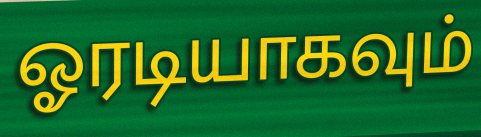
ஓரடியாகவும்